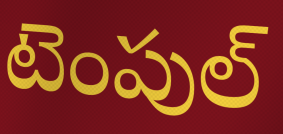
టెంపుల్